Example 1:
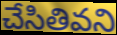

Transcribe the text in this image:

చేసితివని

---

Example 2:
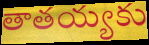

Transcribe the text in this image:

తాతయ్యకు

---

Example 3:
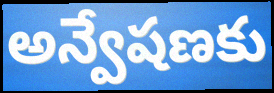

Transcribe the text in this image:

అన్వేషణకు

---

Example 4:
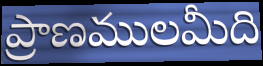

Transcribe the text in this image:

ప్రాణములమీది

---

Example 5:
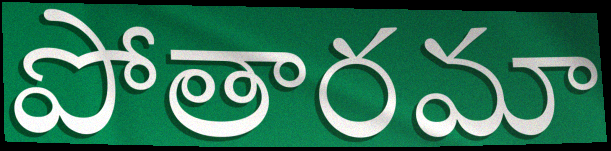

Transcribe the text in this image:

పోతారమా